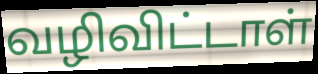
வழிவிட்டாள்